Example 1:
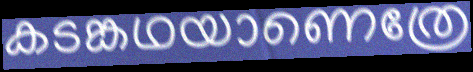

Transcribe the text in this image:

കടങ്കഥയാണെത്രേ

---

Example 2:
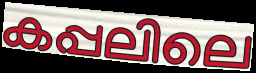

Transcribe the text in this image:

കപ്പലിലെ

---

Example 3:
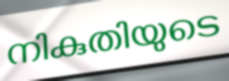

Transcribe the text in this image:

നികുതിയുടെ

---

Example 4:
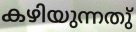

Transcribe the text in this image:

കഴിയുന്നതു്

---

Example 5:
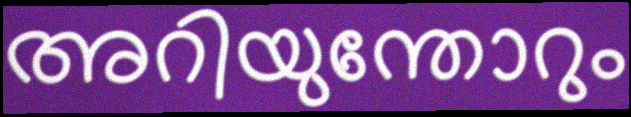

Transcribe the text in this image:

അറിയുന്തോറും